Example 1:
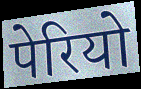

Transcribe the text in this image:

पेरियो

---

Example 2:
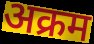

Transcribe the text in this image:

अक्रम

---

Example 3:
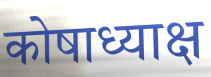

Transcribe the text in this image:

कोषाध्याक्ष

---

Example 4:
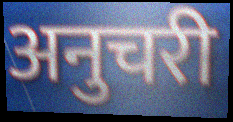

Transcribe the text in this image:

अनुचरी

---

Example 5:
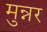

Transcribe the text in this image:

मुन्नर